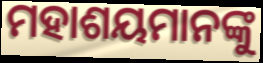
ମହାଶୟମାନଙ୍କୁ